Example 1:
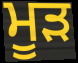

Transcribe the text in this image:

ਮੂੜ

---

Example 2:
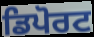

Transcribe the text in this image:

ਡਿਪੋਰਟ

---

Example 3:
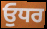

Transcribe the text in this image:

ਓੁਧਰ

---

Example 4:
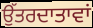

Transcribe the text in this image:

ਉੱਤਰਦਾਤਾਵਾਂ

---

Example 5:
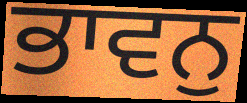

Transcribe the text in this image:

ਭਾਵਨੁ